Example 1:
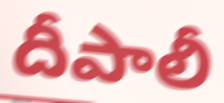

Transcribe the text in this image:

దీపాలీ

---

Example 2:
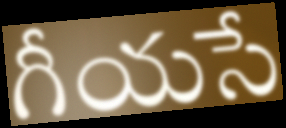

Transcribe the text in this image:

గీయసే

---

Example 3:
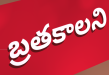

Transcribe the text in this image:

బ్రతకాలని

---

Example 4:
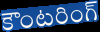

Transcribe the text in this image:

కౌంటరింగ్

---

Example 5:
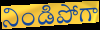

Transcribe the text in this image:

నిండిపోగా